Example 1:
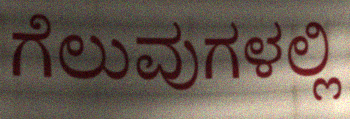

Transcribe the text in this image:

ಗೆಲುವುಗಳಲ್ಲಿ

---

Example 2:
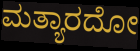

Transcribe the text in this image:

ಮತ್ಯಾರದೋ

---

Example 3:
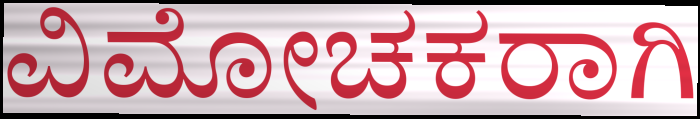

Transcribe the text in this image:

ವಿಮೋಚಕರಾಗಿ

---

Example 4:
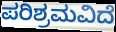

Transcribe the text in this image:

ಪರಿಶ್ರಮವಿದೆ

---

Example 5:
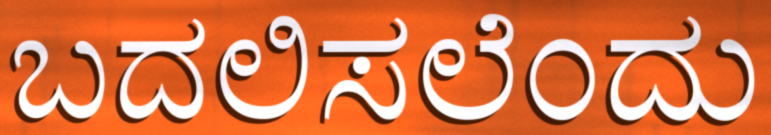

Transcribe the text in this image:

ಬದಲಿಸಲೆಂದು